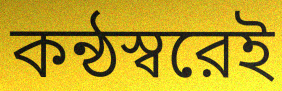
কন্ঠস্বরেই